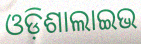
ଓଡ଼ିଶାଲାଇଭ